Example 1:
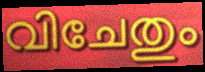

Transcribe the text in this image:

വിചേതും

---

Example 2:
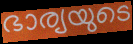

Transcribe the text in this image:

ഭാര്യയുടെ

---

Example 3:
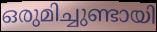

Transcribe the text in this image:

ഒരുമിച്ചുണ്ടായി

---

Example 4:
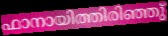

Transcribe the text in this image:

ഫാനായിത്തിരിഞ്ഞു്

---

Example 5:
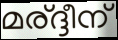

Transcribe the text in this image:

മര്ദ്ദീന്